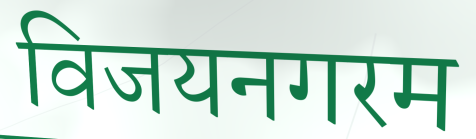
विजयनगरम